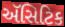
ઍસિટિક